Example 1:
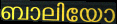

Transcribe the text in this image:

ബാലിയോ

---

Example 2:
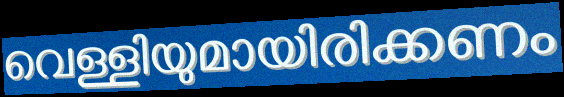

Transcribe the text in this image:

വെള്ളിയുമായിരിക്കണം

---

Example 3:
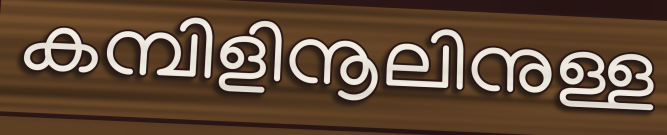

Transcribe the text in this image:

കമ്പിളിനൂലിനുള്ള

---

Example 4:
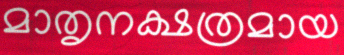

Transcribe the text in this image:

മാതൃനക്ഷത്രമായ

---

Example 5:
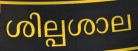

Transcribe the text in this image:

ശില്പശാല